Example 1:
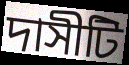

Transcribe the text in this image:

দাসীটি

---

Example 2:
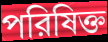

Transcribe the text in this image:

পরিষিক্ত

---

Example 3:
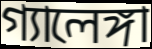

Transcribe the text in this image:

গ্যালেঙ্গা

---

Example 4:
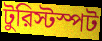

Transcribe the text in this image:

টুরিস্টস্পট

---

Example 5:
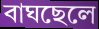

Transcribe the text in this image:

বাঘছেলে